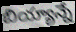
బియ్యాన్నే